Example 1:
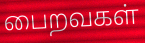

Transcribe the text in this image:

பைறவகள்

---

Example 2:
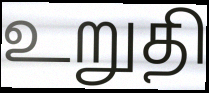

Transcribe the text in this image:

உறுதி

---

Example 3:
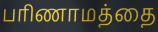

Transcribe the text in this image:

பரிணாமத்தை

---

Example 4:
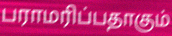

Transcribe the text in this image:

பராமரிப்பதாகும்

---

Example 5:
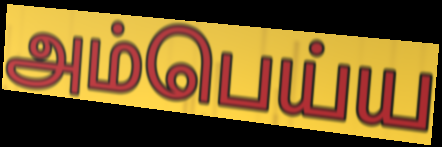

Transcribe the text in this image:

அம்பெய்ய